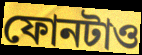
ফোনটাও